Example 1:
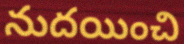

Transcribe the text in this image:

నుదయించి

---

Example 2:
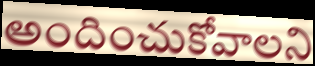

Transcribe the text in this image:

అందించుకోవాలని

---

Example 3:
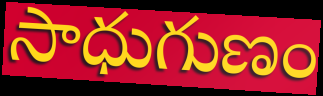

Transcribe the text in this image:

సాధుగుణం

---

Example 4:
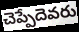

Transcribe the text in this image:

చెప్పేదెవరు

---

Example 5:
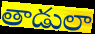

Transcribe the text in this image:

తాడులా